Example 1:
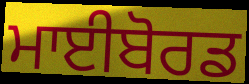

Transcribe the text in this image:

ਮਾਈਬੋਰਡ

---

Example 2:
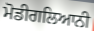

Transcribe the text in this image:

ਮੋਡੀਗਲਿਆਨੀ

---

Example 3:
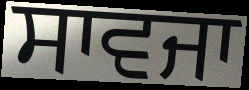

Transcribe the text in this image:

ਸਾਵਜਾ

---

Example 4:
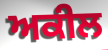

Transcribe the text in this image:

ਅਕੀਲ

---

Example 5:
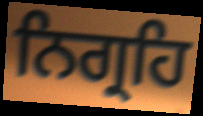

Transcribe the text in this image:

ਨਿਗ੍ਰਹਿ